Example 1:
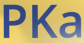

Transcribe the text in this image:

PKa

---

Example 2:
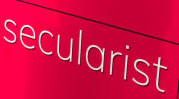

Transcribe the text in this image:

secularist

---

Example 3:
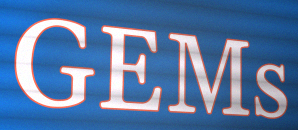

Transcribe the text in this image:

GEMs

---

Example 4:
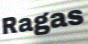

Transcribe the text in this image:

Ragas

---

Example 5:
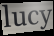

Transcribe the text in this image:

lucy